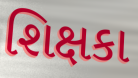
શિક્ષકા